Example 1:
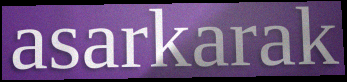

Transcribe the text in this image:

asarkarak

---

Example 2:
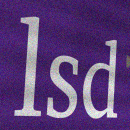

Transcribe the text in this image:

lsd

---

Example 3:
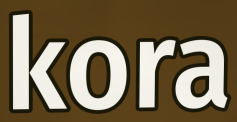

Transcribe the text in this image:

kora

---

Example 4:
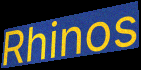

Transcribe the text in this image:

Rhinos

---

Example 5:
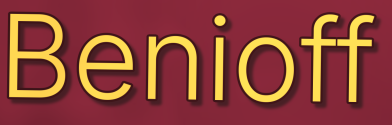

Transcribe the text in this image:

Benioff